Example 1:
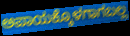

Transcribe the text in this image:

ಅಪಾಯಕ್ಕೊಳಗಾಗಬಲ್ಲ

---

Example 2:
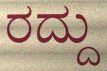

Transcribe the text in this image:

ರದ್ದು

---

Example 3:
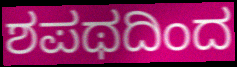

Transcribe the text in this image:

ಶಪಥದಿಂದ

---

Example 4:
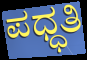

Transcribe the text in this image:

ಪಧ್ಧತಿ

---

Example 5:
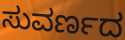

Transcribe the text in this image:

ಸುವರ್ಣದ